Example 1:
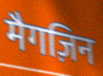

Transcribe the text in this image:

मैगज़िन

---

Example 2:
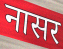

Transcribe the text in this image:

नासर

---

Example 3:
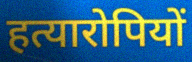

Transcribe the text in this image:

हत्यारोपियों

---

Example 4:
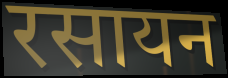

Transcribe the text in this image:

रसायन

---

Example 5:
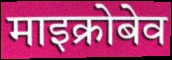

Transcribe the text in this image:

माइक्रोबेव